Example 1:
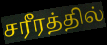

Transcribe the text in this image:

சரீரத்தில்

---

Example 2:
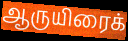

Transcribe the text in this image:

ஆருயிரைக்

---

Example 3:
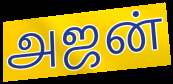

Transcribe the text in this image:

அஜன்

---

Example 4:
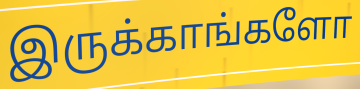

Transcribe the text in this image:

இருக்காங்களோ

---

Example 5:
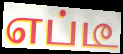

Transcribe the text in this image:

எப்டீ